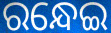
ରନ୍ଧେଇ